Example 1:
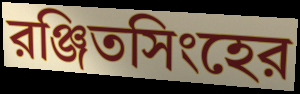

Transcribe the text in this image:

রঞ্জিতসিংহের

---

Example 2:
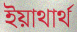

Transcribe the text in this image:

ইয়াথার্থ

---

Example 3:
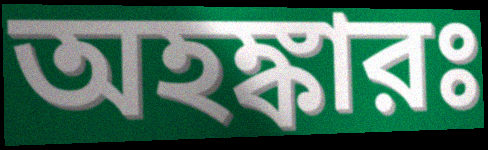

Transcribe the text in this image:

অহঙ্কারঃ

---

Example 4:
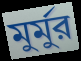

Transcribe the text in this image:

মুর্মুর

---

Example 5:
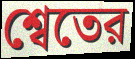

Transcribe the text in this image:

শ্বেতের